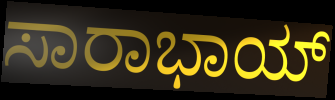
ಸಾರಾಭಾಯ್